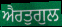
ਐਰਤੁਗੁਲ